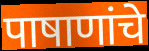
पाषाणांचे